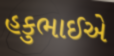
હકુભાઈએ